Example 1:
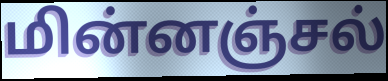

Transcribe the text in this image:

மின்னஞ்சல்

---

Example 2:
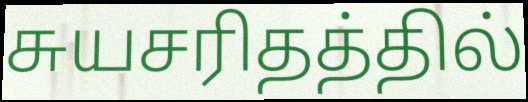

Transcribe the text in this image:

சுயசரிதத்தில்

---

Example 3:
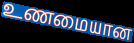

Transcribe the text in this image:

உணமையான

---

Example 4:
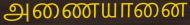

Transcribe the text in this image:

அணையானை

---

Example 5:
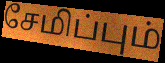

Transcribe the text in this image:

சேமிப்பும்